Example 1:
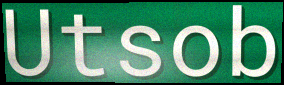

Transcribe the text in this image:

Utsob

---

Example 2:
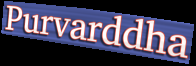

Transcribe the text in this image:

Purvarddha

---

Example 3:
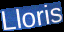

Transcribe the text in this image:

Lloris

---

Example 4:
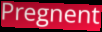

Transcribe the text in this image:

Pregnent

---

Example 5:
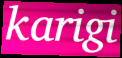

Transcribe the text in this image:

karigi